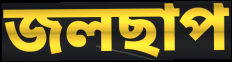
জলছাপ